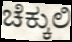
ಚೆಕ್ಕುಲಿ